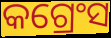
କଗ୍ରେଂସ